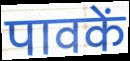
पावकें